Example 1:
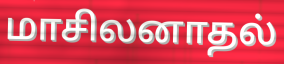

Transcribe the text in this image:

மாசிலனாதல்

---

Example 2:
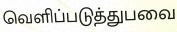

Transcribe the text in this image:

வெளிப்படுத்துபவை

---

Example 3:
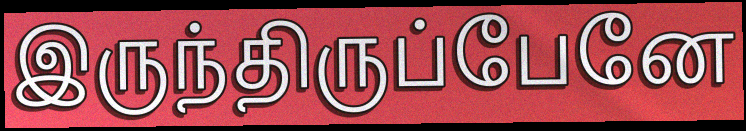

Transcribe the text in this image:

இருந்திருப்பேனே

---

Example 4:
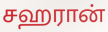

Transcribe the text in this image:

சஹரான்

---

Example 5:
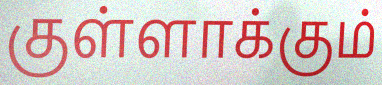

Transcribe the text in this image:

குள்ளாக்கும்